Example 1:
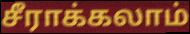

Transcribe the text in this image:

சீராக்கலாம்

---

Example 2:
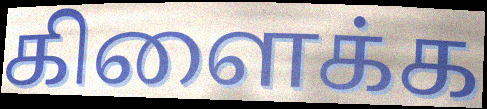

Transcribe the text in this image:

கிளைக்க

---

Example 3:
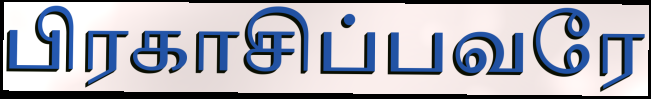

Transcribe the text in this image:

பிரகாசிப்பவரே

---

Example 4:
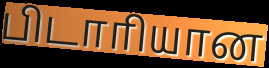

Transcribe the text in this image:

பிடாரியான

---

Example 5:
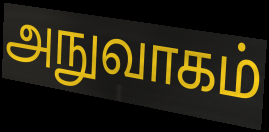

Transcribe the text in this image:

அநுவாகம்